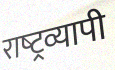
राष्‍ट्रव्‍यापी